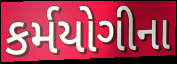
કર્મયોગીના